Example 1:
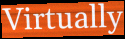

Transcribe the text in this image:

Virtually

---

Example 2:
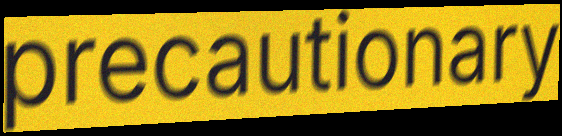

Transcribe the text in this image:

precautionary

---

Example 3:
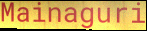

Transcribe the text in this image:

Mainaguri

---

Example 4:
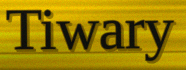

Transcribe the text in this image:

Tiwary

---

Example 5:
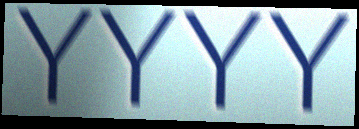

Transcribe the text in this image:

YYYY